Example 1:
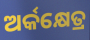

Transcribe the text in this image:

ଅର୍କକ୍ଷେତ୍ର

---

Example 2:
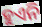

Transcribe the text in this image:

ହୁଏନି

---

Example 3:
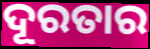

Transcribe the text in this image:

ଦୂରତାର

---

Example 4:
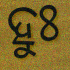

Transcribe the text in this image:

ହୁଃ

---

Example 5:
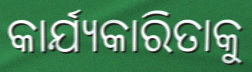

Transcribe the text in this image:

କାର୍ଯ୍ୟକାରିତାକୁ